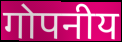
गोपनीय